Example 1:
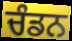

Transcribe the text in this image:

ਚੰਡਨ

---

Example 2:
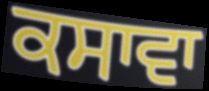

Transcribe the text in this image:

ਕਸਾਵਾ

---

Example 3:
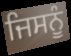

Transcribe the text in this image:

ਜਿਸਨੂੰ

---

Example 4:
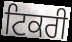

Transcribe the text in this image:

ਟਿਕਰੀ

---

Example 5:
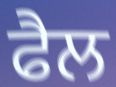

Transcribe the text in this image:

ਫੈਲ